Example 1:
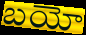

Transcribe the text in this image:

బయో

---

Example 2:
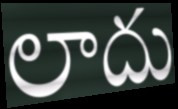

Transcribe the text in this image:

లాదు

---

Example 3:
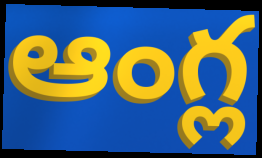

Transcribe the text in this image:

ఆంగ్ల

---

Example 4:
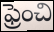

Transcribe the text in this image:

ఫ్రెంచి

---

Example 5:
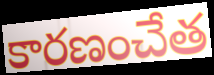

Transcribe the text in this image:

కారణంచేత